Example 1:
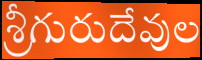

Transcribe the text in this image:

శ్రీగురుదేవుల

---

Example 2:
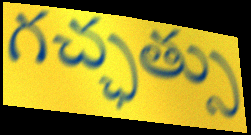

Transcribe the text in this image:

గచ్ఛత్సు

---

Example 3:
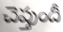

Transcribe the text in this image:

చెప్తుందీ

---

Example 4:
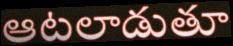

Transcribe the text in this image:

ఆటలాడుతూ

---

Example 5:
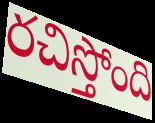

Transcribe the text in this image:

రచిస్తోంది